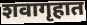
शवागृहात